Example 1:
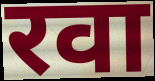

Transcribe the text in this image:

रवा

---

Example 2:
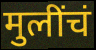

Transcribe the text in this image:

मुलींचं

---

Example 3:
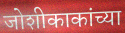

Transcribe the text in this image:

जोशीकाकांच्या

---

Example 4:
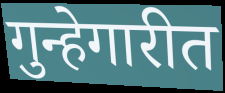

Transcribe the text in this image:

गुन्हेगारीत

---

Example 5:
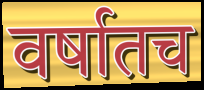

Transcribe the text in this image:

वर्षातच